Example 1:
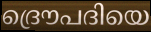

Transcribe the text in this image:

ദ്രൌപദിയെ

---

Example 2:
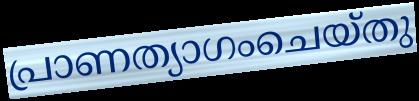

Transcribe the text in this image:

പ്രാണത്യാഗംചെയ്തു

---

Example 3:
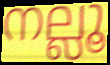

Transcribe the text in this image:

നല്ലൂ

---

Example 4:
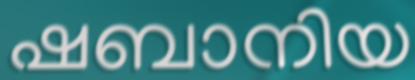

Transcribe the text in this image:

ഷബാനിയ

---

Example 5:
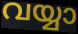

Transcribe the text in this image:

വയ്യാ